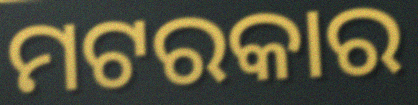
ମଟରକାର